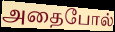
அதைபோல்